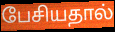
பேசியதால்